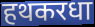
हथकरधा